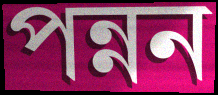
পন্নন